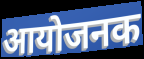
आयोजनक